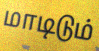
மாடிடும்